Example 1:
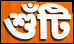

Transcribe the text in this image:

শুঁটি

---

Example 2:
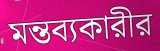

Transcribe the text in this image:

মন্তব্যকারীর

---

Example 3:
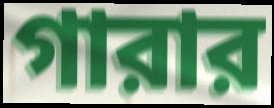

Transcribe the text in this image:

গারার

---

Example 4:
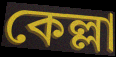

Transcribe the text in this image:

কেল্লা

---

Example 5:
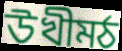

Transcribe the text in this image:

উখীমঠ